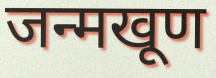
जन्मखूण